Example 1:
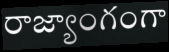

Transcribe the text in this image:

రాజ్యాంగంగా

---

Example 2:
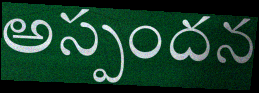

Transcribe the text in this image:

అస్పందన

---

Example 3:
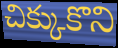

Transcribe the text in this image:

చిక్కుకొని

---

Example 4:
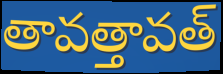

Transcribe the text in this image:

తావత్తావత్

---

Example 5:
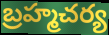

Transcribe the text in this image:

బ్రహ్మచర్య